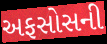
અફસોસની